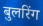
बुलरिंग